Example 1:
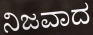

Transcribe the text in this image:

ನಿಜವಾದ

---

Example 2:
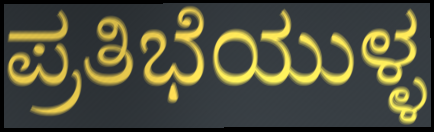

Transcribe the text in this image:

ಪ್ರತಿಭೆಯುಳ್ಳ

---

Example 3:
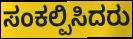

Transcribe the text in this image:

ಸಂಕಲ್ಪಿಸಿದರು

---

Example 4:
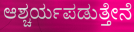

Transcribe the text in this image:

ಆಶ್ಚರ್ಯಪಡುತ್ತೇನೆ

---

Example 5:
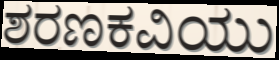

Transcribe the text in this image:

ಶರಣಕವಿಯು